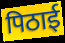
पिठाई